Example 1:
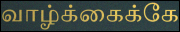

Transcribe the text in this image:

வாழ்க்கைக்கே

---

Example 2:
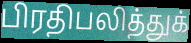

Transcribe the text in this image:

பிரதிபலித்துக்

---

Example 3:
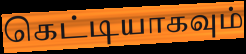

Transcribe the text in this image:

கெட்டியாகவும்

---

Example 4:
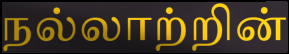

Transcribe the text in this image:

நல்லாற்றின்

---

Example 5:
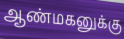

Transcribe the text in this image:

ஆண்மகனுக்கு